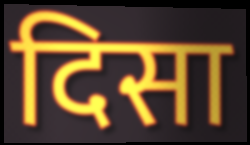
दिसा